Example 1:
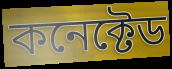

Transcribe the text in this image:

কনেক্টেড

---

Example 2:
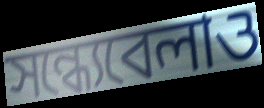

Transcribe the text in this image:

সন্ধ্যেবেলাও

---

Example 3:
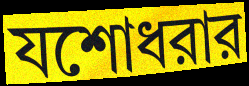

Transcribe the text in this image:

যশোধরার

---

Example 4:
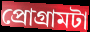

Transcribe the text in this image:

প্রোগ্রামটা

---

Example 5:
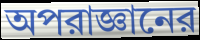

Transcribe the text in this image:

অপরাজ্ঞানের